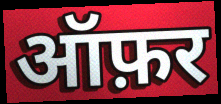
ऑफ़र